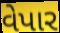
વેપાર